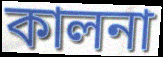
কালনা